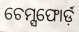
ଚେମ୍ସଫୋର୍ଡ଼